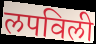
लपविली